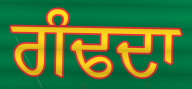
ਗੰਢਦਾ